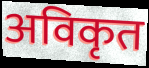
अविकृत